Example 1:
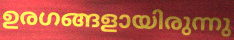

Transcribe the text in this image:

ഉരഗങ്ങളായിരുന്നു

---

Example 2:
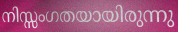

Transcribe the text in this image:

നിസ്സംഗതയായിരുന്നു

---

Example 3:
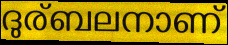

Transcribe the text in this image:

ദുര്ബലനാണ്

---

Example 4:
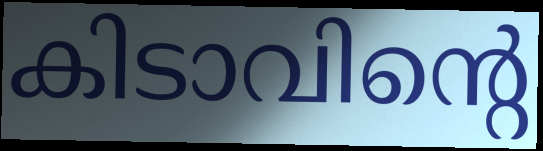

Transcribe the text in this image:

കിടാവിന്റെ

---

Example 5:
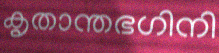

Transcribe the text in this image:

കൃതാന്തഭഗിനി